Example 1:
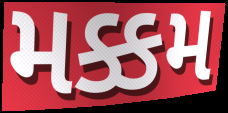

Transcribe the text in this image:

મક્કમ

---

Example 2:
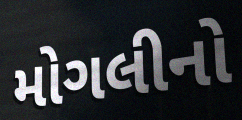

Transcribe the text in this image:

મોગલીનો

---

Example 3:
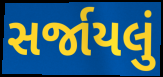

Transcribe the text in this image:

સર્જાયલું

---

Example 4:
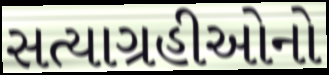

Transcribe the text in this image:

સત્યાગ્રહીઓનો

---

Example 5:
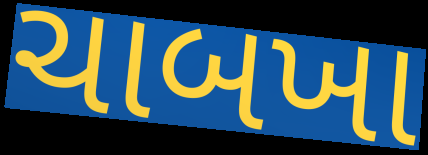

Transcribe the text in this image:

ચાબખા